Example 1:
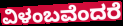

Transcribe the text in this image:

ವಿಳಂಬವೆಂದರೆ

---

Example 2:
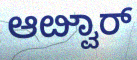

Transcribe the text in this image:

ಆೞ್ವಾರ್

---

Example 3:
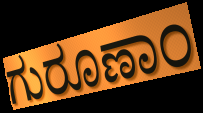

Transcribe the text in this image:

ಗುರೂಣಾಂ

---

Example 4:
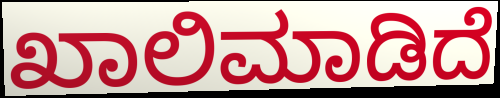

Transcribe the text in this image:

ಖಾಲಿಮಾಡಿದೆ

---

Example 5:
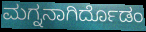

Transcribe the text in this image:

ಮಗ್ನನಾಗಿರ್ದೊಡಂ